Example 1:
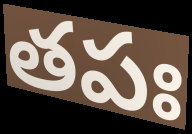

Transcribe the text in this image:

తపః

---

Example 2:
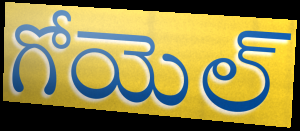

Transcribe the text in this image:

గోయెల్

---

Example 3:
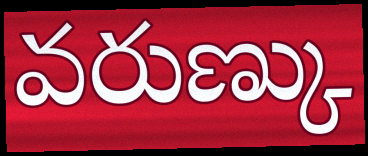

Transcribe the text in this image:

వరుణ్కు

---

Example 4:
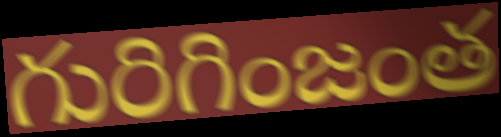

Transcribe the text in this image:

గురిగింజంత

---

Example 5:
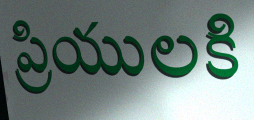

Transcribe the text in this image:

ప్రియులకి